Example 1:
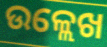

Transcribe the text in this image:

ଉଳ୍ଲେଖ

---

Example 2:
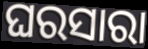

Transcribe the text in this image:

ଘରସାରା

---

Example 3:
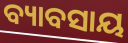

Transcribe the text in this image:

ବ୍ୟାବସାୟ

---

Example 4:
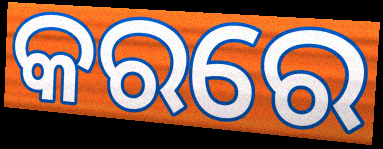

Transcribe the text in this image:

କରରେ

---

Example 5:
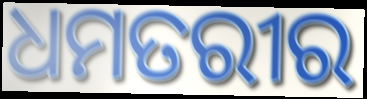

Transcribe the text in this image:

ଧମତରୀର